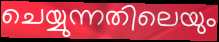
ചെയ്യുന്നതിലെയും